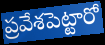
ప్రవేశపెట్టారో